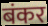
बंकर